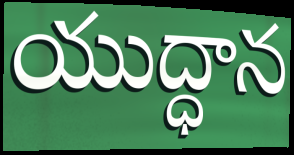
యుద్ధాన